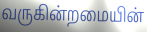
வருகின்றமையின்